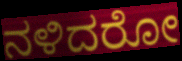
ನಳಿದರೋ